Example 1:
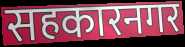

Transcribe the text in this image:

सहकारनगर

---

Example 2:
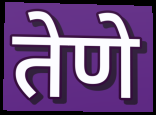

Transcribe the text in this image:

तेणे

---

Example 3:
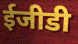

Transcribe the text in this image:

ईजीडी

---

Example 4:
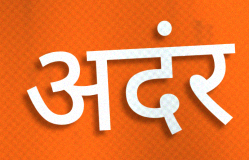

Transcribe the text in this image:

अदंर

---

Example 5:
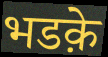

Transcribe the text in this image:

भडक़े